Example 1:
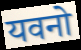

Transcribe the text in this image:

यवनो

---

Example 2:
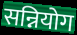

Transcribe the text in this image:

सन्नियोग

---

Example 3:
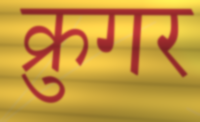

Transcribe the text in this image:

क्रुगर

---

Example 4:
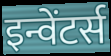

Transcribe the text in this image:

इन्वेंटर्स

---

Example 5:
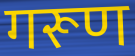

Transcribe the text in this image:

गरूण